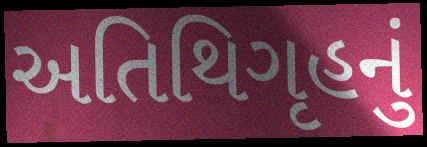
અતિથિગૃહનું